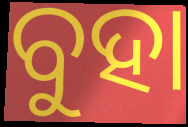
ବୁହା